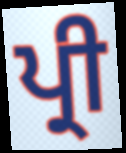
ਪ੍ਰੀ